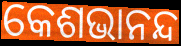
କେଶଭାନନ୍ଦ